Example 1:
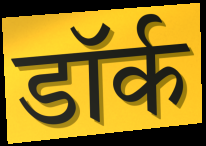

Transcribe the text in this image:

डॉर्क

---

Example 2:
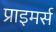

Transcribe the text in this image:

प्राइमर्स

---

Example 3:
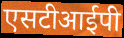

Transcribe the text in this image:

एसटीआईपी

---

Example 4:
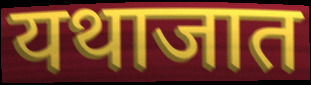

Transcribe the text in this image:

यथाजात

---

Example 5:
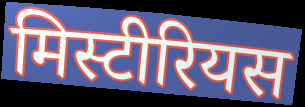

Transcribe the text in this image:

मिस्टीरियस